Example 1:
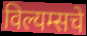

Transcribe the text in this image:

विल्यम्सचे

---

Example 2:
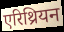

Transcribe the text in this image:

एरिथ्रियन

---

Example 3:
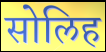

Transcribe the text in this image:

सोलिह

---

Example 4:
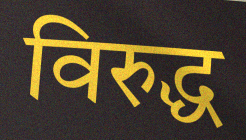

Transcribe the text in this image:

विरुद्ध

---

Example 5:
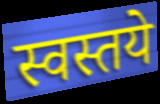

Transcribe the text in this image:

स्वस्तये